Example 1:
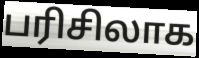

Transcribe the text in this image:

பரிசிலாக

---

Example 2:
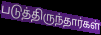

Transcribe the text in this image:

படுத்திருந்தார்கள்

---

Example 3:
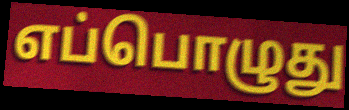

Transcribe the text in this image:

எப்பொழுது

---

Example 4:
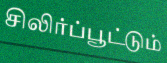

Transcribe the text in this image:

சிலிர்ப்பூட்டும்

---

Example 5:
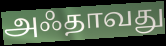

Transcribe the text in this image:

அஃதாவது